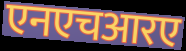
एनएचआरए